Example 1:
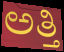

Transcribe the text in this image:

ಅತ್ತಿ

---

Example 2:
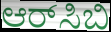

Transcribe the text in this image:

ಆರ್‌ಸಿಬಿ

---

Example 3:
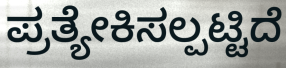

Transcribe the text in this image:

ಪ್ರತ್ಯೇಕಿಸಲ್ಪಟ್ಟಿದೆ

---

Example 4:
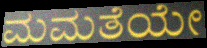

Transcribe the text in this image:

ಮಮತೆಯೇ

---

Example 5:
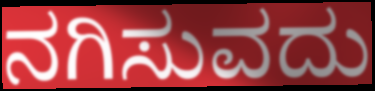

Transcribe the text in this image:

ನಗಿಸುವದು